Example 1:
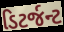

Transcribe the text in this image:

ડિટર્જન્ટ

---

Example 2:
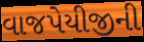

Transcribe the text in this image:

વાજપેયીજીની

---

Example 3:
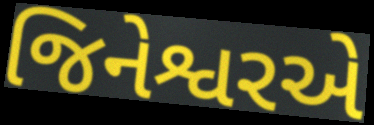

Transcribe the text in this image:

જિનેશ્વરએ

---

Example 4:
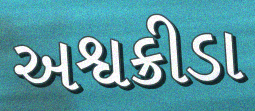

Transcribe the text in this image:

અશ્વક્રીડા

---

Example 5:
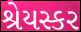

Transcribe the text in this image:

શ્રેયસ્કર